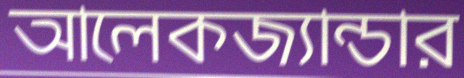
আলেকজ্যান্ডার